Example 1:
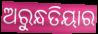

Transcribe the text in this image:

ଅରୁନ୍ଧତିୟାର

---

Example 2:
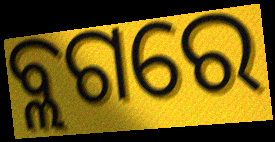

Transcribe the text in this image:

ବ୍ଲଗରେ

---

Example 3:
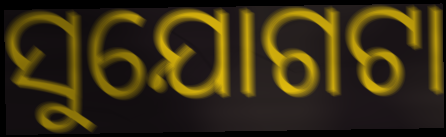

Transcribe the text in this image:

ସୁଯୋଗଟା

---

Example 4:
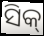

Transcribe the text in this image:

ସିକ୍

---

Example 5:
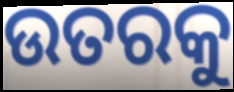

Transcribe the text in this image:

ଉତରକୁ